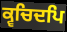
ਕ੍ਵਚਿਦਪਿ